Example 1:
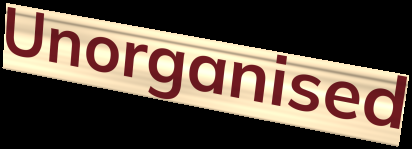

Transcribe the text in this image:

Unorganised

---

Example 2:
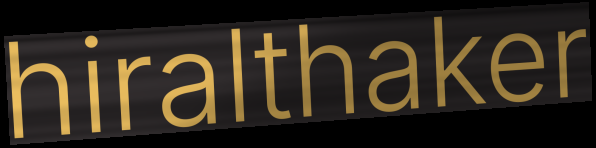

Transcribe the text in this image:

hiralthaker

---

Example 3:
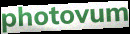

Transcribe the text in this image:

photovum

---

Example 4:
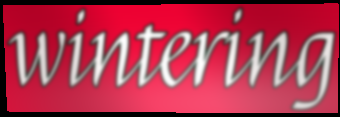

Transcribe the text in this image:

wintering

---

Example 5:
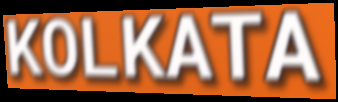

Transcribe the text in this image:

KOLKATA